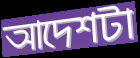
আদেশটা